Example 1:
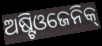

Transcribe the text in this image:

ଅଷ୍ଟିଓଜେନିକ୍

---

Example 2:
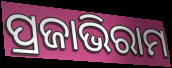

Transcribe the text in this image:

ପ୍ରଜାଭିରାମ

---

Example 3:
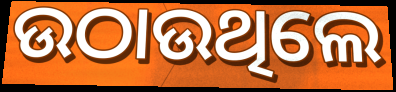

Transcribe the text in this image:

ଉଠାଉଥିଲେ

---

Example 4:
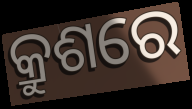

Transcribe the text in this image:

କ୍ରୁଶରେ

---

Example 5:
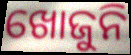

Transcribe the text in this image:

ଖୋଜୁନି